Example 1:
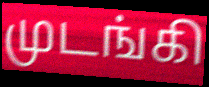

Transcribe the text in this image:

முடங்கி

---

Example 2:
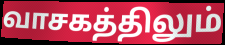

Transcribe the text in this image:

வாசகத்திலும்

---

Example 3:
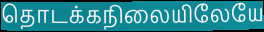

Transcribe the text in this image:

தொடக்கநிலையிலேயே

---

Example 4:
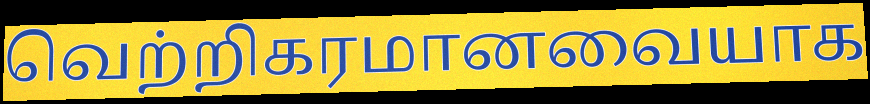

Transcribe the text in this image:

வெற்றிகரமானவையாக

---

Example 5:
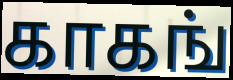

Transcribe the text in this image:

காகங்